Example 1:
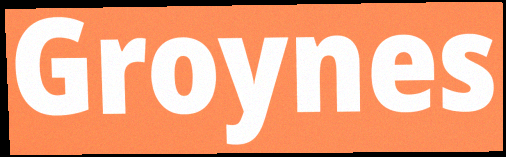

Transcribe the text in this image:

Groynes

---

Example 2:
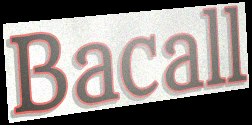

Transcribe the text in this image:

Bacall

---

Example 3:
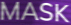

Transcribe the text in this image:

MASK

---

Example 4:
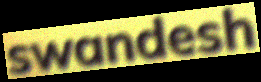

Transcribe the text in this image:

swandesh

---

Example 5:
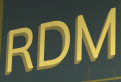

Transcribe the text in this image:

RDM